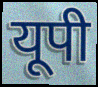
यूपी